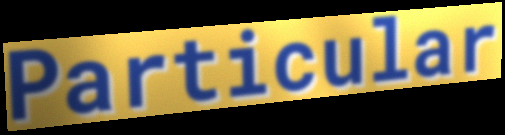
Particular